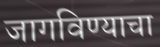
जागविण्याचा